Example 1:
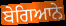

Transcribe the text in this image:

ਬੇਗਿਆਨੇ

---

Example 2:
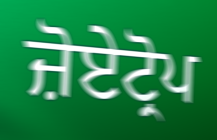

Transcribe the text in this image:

ਜ਼ੋਏਟ੍ਰੋਪ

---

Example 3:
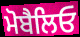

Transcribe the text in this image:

ਮੋਬੈਲਿਓ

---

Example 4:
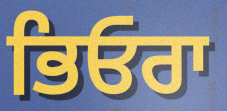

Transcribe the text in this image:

ਭਿਓਰਾ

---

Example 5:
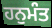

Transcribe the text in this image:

ਹਨੁਮੰਤ